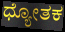
ಧ್ಯೋತಕ